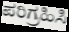
ಪರಿಗ್ರಹಿಸಿ